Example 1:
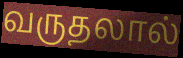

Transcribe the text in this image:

வருதலால்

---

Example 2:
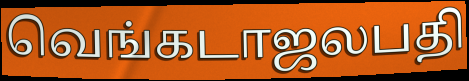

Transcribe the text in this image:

வெங்கடாஜலபதி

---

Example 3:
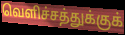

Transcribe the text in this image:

வெளிச்சத்துக்குக்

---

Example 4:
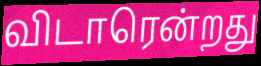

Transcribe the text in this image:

விடாரென்றது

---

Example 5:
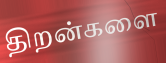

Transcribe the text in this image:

திறன்களை